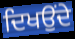
ਦਿਖਉਂਦੇ